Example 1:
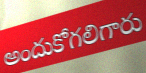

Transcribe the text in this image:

అందుకోగలిగారు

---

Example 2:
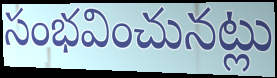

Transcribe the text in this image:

సంభవించునట్లు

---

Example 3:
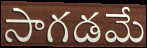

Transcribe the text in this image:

సాగడమే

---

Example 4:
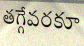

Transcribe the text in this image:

తగ్గేవరకూ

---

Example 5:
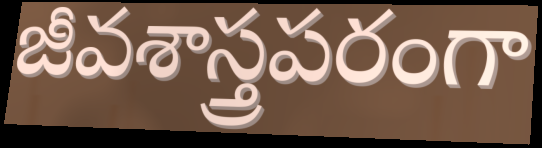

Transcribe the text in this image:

జీవశాస్త్రపరంగా